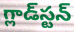
గ్లాడ్‌స్టన్